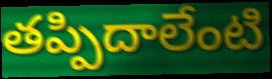
తప్పిదాలేంటి